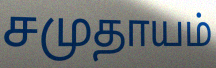
சமுதாயம்